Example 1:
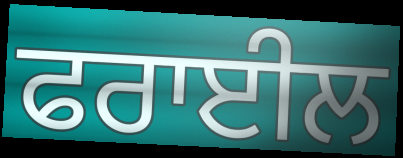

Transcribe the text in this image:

ਫਰਾਈਲ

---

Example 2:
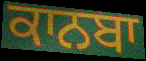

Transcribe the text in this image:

ਕਾਨਬਾ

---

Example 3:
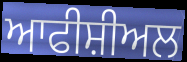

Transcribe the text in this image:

ਆਫੀਸ਼ੀਅਲ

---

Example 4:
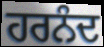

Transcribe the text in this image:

ਹਰਨੰਦ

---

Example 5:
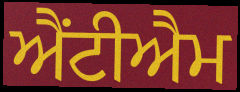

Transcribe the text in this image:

ਐਂਟੀਐਮ